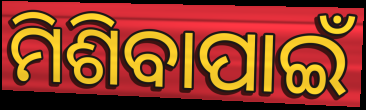
ମିଶିବାପାଇଁ